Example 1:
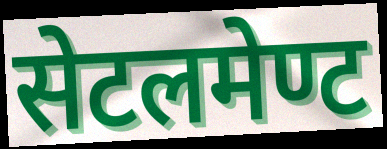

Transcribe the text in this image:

सेटलमेण्ट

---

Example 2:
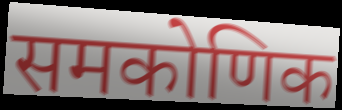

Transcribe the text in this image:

समकोणिक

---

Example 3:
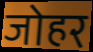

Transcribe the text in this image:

जोहर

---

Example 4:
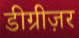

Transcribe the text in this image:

डीग्रीज़र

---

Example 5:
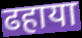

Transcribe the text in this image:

ढहाया